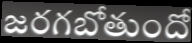
జరగబోతుందో